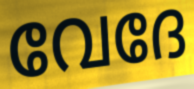
വേദേ